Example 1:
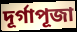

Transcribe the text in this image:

দূর্গাপূজা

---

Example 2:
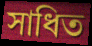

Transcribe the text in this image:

সাধিত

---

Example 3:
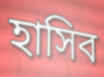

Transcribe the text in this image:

হাসিব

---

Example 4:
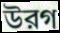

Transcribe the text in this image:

উরগ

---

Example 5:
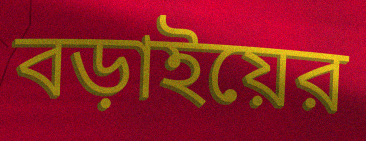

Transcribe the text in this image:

বড়াইয়ের